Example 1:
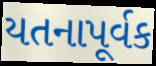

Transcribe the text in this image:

યતનાપૂર્વક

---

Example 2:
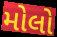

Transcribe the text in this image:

મોલો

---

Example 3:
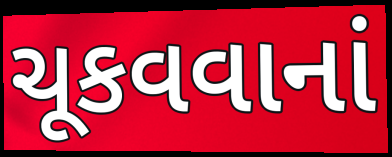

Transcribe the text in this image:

ચૂકવવાનાં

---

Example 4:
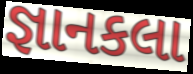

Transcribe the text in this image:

જ્ઞાનકલા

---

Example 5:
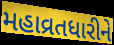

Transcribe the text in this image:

મહાવ્રતધારીને